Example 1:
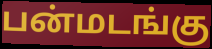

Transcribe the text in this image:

பன்மடங்கு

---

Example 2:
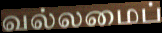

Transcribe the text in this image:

வல்லமைப்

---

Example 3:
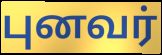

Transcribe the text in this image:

புனவர்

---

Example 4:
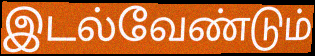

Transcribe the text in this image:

இடல்வேண்டும்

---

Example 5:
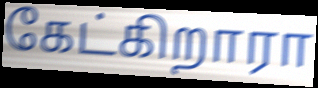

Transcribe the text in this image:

கேட்கிறாரா